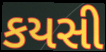
કયસી